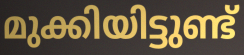
മുക്കിയിട്ടുണ്ട്